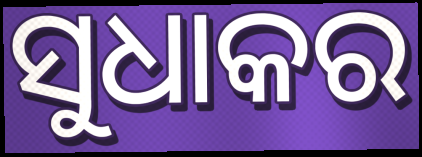
ସୁଧାକର